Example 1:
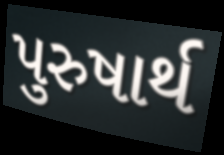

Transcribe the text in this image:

પુરુષાર્થ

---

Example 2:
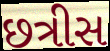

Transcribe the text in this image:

છત્રીસ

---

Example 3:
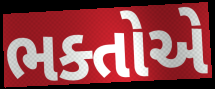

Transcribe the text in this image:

ભક્તોએ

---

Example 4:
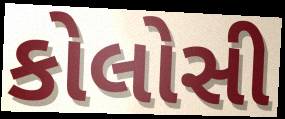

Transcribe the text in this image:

કોલોસી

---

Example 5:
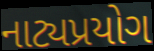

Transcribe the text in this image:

નાટ્યપ્રયોગ